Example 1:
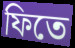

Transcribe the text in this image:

ফিতে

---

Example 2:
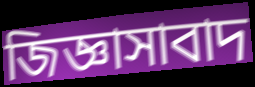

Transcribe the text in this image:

জিজ্ঞাসাবাদ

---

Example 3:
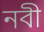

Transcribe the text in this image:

নবী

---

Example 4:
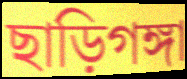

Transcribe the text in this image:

ছাড়িগঙ্গা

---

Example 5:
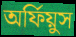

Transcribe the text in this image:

অর্ফিয়ুস